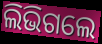
ଲିଭିଗଲେ